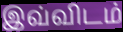
இவ்விடம்